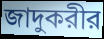
জাদুকরীর